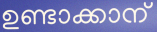
ഉണ്ടാക്കാന്